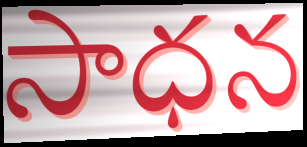
సాధన